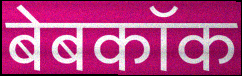
बेबकॉक